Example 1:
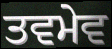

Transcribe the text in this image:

ਤਵਮੇਵ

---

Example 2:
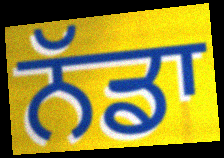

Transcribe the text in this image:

ਨੱਡਾ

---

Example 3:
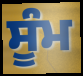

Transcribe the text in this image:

ਸੂੰਮ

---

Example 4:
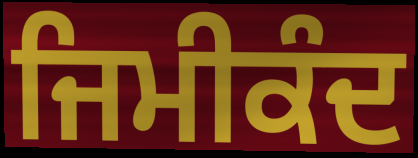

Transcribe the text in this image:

ਜਿਮੀਕੰਦ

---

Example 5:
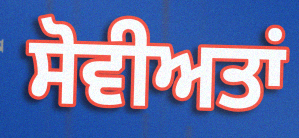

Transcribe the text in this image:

ਸੋਵੀਅਤਾਂ